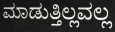
ಮಾಡುತ್ತಿಲ್ಲವಲ್ಲ